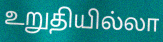
உறுதியில்லா